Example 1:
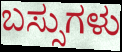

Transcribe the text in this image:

ಬಸ್ಸುಗಳು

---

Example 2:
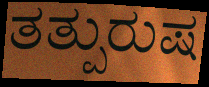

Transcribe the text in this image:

ತತ್ಪುರುಷ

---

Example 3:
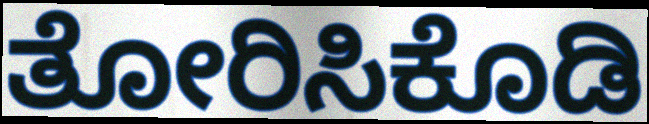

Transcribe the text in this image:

ತೋರಿಸಿಕೊಡಿ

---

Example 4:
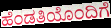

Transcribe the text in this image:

ಹೆಂಡತಿಯೊಂದಿಗೆ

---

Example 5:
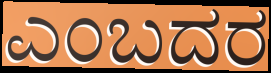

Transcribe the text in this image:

ಎಂಬದರ